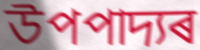
উপপাদ্যৰ